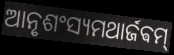
ଆନୃଶଂସ୍ୟମଥାର୍ଜଵମ୍